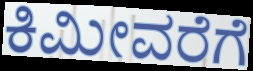
ಕಿಮೀವರೆಗೆ